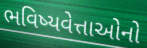
ભવિષ્યવેત્તાઓનો